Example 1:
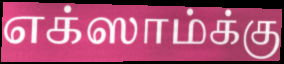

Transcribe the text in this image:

எக்ஸாம்க்கு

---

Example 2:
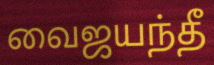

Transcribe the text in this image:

வைஜயந்தீ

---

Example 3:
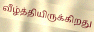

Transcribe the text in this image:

வீழ்த்தியிருக்கிறது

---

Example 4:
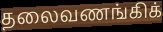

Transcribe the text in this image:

தலைவணங்கிக்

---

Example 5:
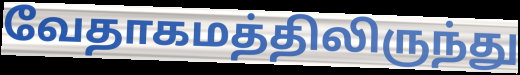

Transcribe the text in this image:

வேதாகமத்திலிருந்து